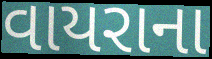
વાયરાના